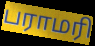
பராமரி